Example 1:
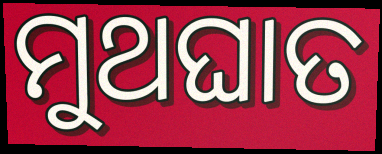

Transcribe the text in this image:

ମୁଥଘାତ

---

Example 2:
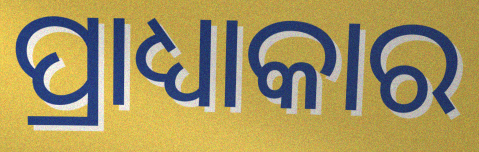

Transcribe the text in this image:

ପ୍ରାଧ୍ୟାକାର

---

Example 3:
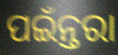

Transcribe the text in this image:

ପଇଁନ୍ତରା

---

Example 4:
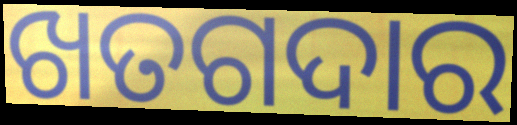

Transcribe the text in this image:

ଖତଗଦାର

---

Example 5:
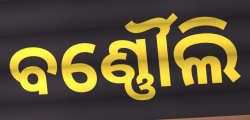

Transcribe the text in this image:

ବର୍ଣ୍ଣୌଲି